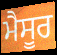
ਮੈਸੂਰ